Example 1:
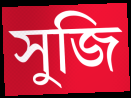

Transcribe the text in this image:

সুজি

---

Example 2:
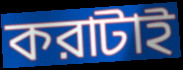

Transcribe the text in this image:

করাটাই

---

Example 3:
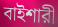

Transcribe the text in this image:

বাইশারী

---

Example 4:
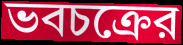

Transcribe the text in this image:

ভবচক্রের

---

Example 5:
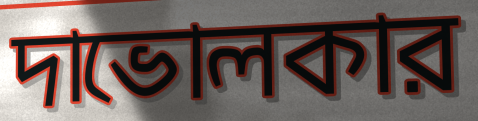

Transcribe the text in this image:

দাভোলকার